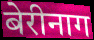
बेरीनाग